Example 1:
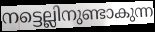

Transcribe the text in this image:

നട്ടെല്ലിനുണ്ടാകുന്ന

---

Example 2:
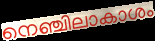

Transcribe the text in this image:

നെഞ്ചിലാകാശം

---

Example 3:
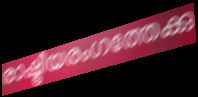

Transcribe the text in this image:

രാഷ്ട്രീയരംഗത്തേക്കു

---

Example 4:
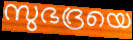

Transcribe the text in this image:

സുഭദ്രയെ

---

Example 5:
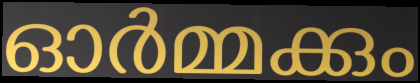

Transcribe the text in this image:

ഓർമ്മക്കും